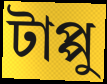
টাপ্পু